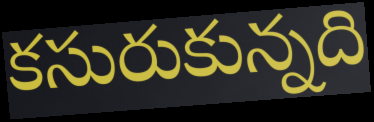
కసురుకున్నది